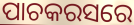
ପାଚକରସରେ